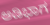
ಅಡಿಭಾಗ